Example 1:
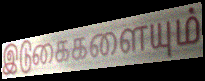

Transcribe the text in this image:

இடுகைகளையும்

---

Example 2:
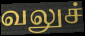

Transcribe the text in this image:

வலுச்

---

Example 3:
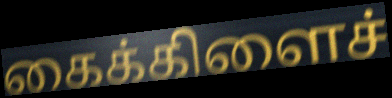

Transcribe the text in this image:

கைக்கிளைச்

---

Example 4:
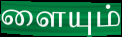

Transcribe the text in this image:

ளையும்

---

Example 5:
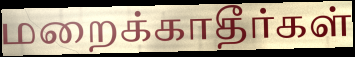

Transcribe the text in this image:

மறைக்காதீர்கள்